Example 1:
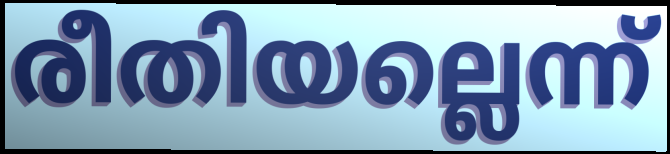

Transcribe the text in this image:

രീതിയല്ലെന്ന്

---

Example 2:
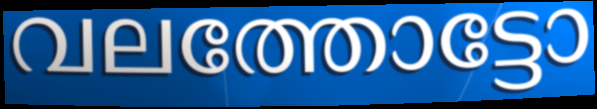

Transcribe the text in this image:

വലത്തോട്ടോ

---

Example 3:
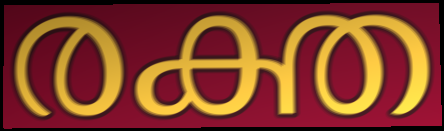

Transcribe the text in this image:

രക്ത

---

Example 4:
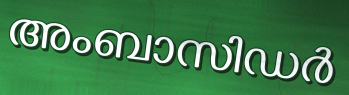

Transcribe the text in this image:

അംബാസിഡർ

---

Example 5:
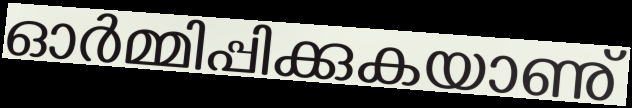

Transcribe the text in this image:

ഓർമ്മിപ്പിക്കുകയാണു്